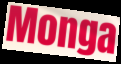
Monga